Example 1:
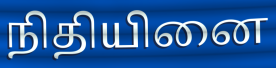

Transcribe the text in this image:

நிதியினை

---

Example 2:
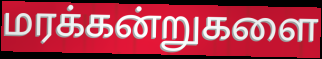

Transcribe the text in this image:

மரக்கன்றுகளை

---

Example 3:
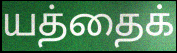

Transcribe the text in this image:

யத்தைக்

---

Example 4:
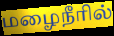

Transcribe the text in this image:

மழைநீரில்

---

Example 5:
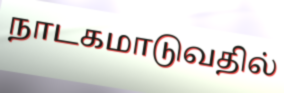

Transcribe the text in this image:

நாடகமாடுவதில்